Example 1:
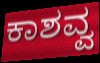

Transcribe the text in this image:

ಕಾಶವ್ವ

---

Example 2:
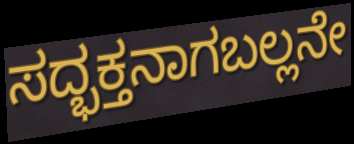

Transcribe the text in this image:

ಸದ್ಭಕ್ತನಾಗಬಲ್ಲನೇ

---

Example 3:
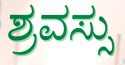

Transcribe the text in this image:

ಶ್ರವಸ್ಸು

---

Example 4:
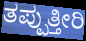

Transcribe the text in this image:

ತಪ್ಪುತ್ತೀರಿ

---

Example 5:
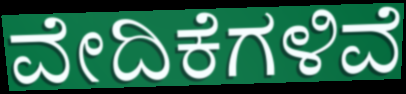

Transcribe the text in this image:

ವೇದಿಕೆಗಳಿವೆ